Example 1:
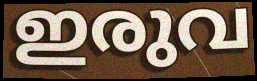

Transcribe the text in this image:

ഇരുവ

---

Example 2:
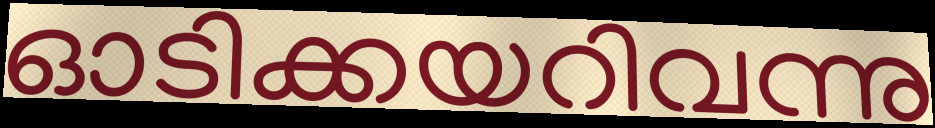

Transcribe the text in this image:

ഓടിക്കയറിവന്നു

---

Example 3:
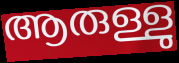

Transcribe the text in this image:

ആരുള്ളു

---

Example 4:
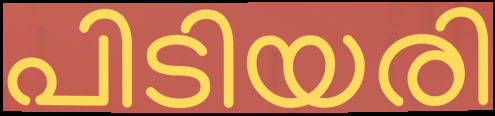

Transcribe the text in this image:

പിടിയരി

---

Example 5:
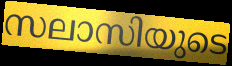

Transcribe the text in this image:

സലാസിയുടെ